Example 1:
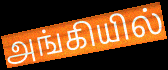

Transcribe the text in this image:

அங்கியில்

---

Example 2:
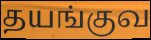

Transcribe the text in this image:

தயங்குவ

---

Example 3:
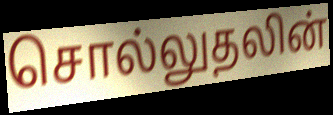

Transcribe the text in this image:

சொல்லுதலின்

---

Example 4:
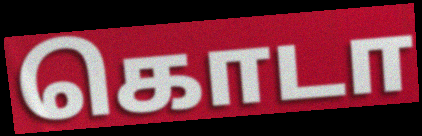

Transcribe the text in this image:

கொடா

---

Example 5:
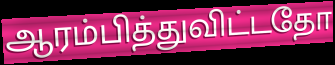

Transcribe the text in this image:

ஆரம்பித்துவிட்டதோ